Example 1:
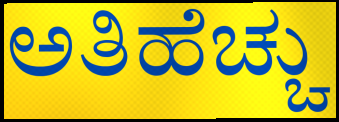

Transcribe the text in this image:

ಅತಿಹೆಚ್ಚು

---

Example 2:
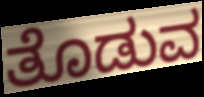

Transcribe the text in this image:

ತೊಡುವ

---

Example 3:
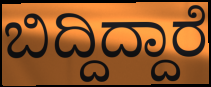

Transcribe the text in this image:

ಬಿದ್ದಿದ್ದಾರೆ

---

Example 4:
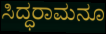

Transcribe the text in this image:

ಸಿದ್ಧರಾಮನೂ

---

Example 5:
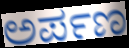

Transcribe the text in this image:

ಅರ್ಪಣ